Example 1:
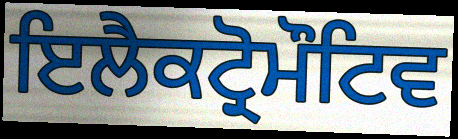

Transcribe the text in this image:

ਇਲੈਕਟ੍ਰੋਮੌਟਿਵ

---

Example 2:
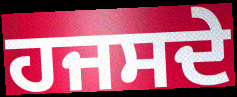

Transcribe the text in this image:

ਹਜਸਦੇ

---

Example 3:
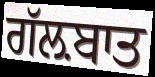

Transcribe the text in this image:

ਗੱਲ਼ਬਾਤ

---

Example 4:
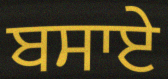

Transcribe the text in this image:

ਬਸਾਏ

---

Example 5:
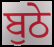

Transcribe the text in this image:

ਬੁਠੇ